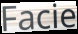
Facie